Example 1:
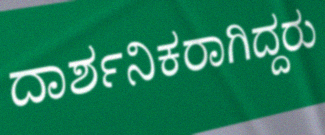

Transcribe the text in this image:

ದಾರ್ಶನಿಕರಾಗಿದ್ದರು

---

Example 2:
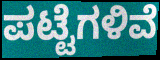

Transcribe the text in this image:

ಪಟ್ಟೆಗಳಿವೆ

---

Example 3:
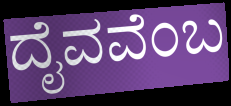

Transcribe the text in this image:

ದೈವವೆಂಬ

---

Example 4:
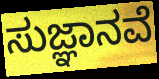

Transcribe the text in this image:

ಸುಜ್ಞಾನವೆ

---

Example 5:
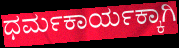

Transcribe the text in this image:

ಧರ್ಮಕಾರ್ಯಕ್ಕಾಗಿ